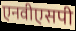
एनवीएसपी